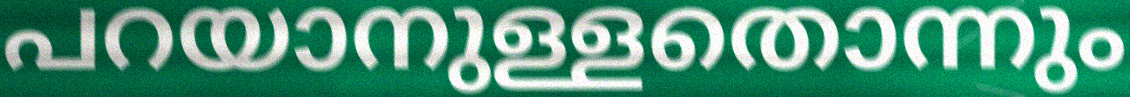
പറയാനുള്ളതൊന്നും